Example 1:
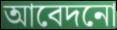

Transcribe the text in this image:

আবেদনো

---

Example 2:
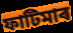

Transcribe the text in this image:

ফাটিমাৰ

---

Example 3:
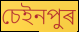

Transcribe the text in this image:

চেইনপুৰ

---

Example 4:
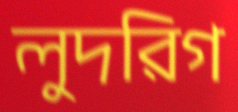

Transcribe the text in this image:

লুদৱিগ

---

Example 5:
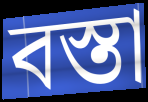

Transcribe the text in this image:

বস্তা